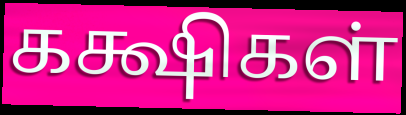
கக்ஷிகள்